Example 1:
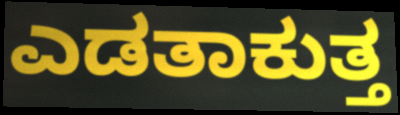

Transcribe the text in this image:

ಎಡತಾಕುತ್ತ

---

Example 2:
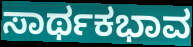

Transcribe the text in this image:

ಸಾರ್ಥಕಭಾವ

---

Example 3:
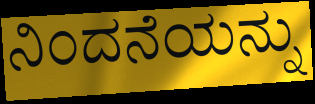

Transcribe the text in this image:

ನಿಂದನೆಯನ್ನು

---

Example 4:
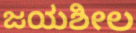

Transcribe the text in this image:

ಜಯಶೀಲ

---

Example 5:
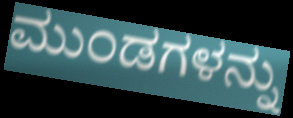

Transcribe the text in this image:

ಮುಂಡಗಳನ್ನು